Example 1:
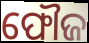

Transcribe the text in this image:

ଫୌଜ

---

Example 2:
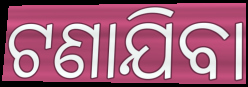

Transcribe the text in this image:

ଟଣାଯିବା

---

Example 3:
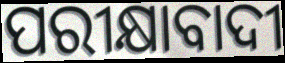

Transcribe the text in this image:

ପରୀକ୍ଷାବାଦୀ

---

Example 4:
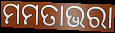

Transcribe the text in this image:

ମମତାଭରା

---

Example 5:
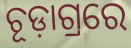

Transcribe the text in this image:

ଚୂଡ଼ାଗ୍ରରେ